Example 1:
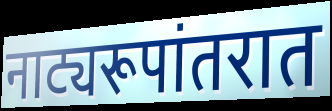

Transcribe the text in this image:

नाट्यरूपांतरात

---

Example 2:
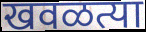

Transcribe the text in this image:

खवळत्या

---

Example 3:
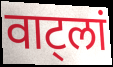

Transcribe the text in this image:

वाट्लां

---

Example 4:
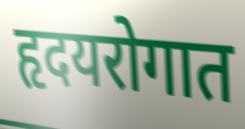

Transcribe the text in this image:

हृदयरोगात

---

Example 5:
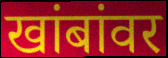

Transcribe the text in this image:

खांबांवर